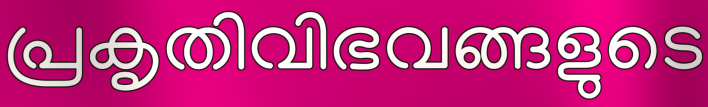
പ്രകൃതിവിഭവങ്ങളുടെ